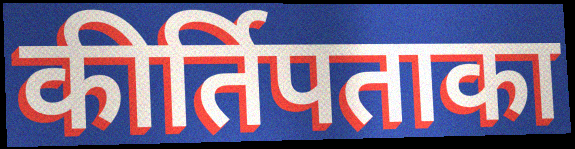
कीर्तिपताका